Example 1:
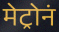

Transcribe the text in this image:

मेट्रोनं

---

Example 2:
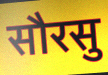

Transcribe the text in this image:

सौरसु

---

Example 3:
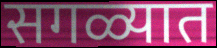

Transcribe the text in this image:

सगळ्यात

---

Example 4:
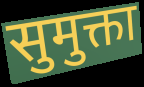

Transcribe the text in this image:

सुमुक्ता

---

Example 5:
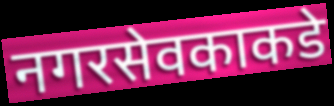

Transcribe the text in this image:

नगरसेवकाकडे